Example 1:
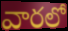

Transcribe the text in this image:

వారలో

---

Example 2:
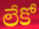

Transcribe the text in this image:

లేకో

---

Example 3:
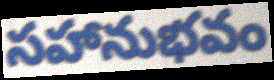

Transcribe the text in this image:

సహానుభవం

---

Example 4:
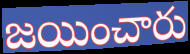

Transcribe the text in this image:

జయించారు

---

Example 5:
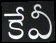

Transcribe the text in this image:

కేవీ